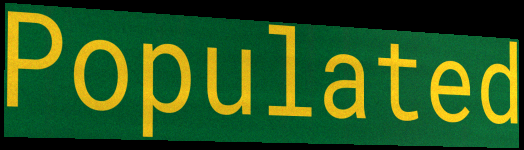
Populated